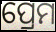
ପ୍ରେମ